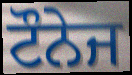
ਟੌਨੇਜ